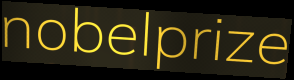
nobelprize